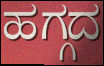
ಹಗ್ಗದ